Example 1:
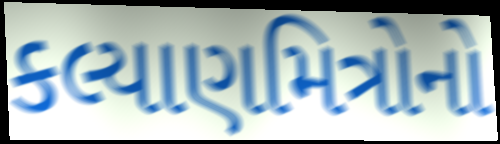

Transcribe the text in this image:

કલ્યાણમિત્રોનો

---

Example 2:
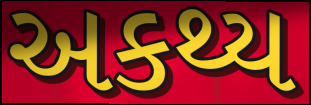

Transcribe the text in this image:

અકથ્ય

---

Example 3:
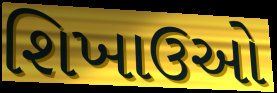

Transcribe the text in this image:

શિખાઉઓ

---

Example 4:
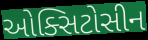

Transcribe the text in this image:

ઓક્સિટોસીન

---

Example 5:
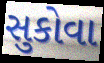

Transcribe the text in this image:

સુકોવા